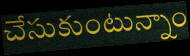
చేసుకుంటున్నాం